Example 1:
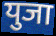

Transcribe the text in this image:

युजा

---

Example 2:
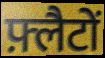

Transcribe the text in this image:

फ़्लैटों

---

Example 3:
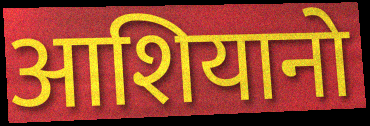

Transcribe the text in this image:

आशियानो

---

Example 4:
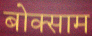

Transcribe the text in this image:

बोक्साम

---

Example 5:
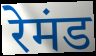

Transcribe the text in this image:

रेमंड